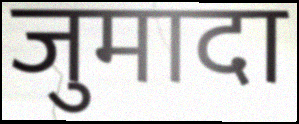
जुमादा